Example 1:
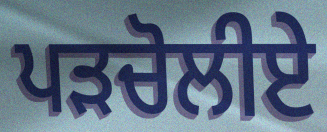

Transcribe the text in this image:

ਪੜਚੋਲੀਏ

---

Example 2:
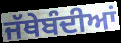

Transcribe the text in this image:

ਜੱਥੇਬੰਦੀਆਂ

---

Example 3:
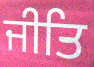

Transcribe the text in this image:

ਜੀਤਿ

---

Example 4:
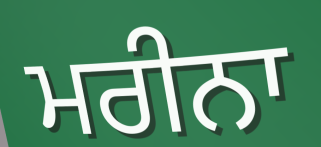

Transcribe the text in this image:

ਮਰੀਨਾ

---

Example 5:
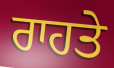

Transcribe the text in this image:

ਰਾਹਤੇ